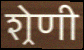
श्रेणी